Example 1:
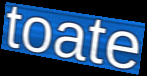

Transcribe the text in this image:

toate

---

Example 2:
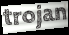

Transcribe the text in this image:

trojan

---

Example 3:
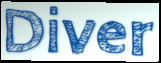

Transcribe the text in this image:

Diver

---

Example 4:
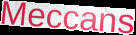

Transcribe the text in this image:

Meccans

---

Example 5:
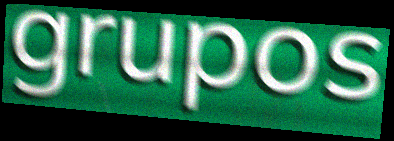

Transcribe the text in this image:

grupos